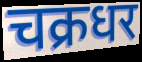
चक्रधर